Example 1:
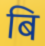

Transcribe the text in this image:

बि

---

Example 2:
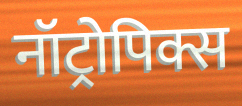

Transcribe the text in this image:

नॉट्रोपिक्स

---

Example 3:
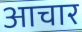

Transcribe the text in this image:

आचार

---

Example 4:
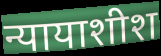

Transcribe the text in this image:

न्यायाशीश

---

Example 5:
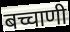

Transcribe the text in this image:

बच्चाणी